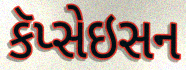
કૅપ્સેઇસન